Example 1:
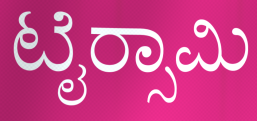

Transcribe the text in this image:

ಟೈರ‍್ಸಾಮಿ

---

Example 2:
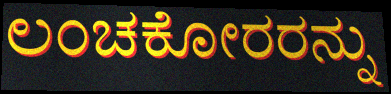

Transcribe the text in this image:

ಲಂಚಕೋರರನ್ನು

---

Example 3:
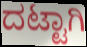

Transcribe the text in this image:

ದಟ್ಟಾಗಿ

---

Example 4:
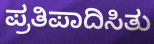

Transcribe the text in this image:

ಪ್ರತಿಪಾದಿಸಿತು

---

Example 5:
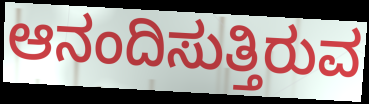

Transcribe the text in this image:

ಆನಂದಿಸುತ್ತಿರುವ